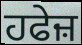
ਹਫੇਜ਼